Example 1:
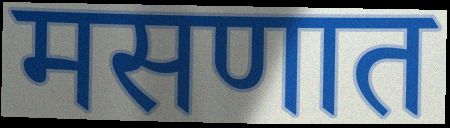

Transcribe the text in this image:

मसणात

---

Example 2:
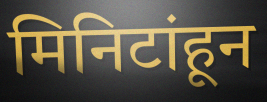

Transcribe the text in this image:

मिनिटांहून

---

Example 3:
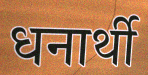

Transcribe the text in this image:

धनार्थी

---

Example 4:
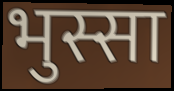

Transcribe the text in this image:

भुस्सा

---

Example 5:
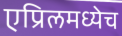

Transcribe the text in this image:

एप्रिलमध्येच